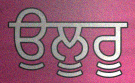
ਉਲੂਰੂ